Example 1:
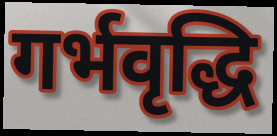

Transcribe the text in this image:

गर्भवृद्धि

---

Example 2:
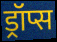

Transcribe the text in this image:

ड्रॉप्स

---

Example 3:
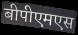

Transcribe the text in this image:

बीपीएमएस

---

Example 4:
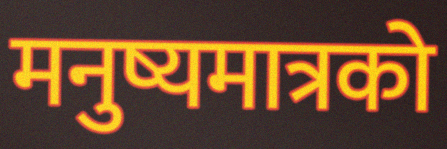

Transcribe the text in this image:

मनुष्यमात्रको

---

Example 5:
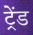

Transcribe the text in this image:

ट्रेंड